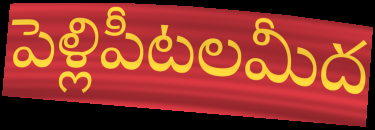
పెళ్లిపీటలమీద